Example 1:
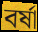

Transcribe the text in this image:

বৰ্ষা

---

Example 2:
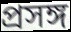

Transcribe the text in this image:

প্ৰসঙ্গ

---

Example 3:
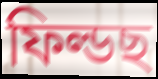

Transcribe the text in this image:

ফিল্ডছ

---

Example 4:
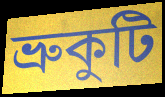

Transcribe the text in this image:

ভ্ৰুকুটি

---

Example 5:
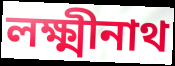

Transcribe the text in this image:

লক্ষ্মীনাথ